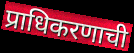
प्राधिकरणाची